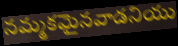
నమ్మకమైనవాడనియు